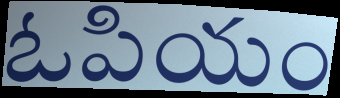
ఓపియం